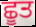
ਛੂਤ